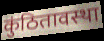
कुंठितावस्था